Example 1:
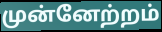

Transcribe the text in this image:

முன்னேற்றம்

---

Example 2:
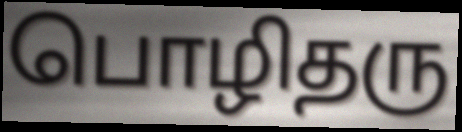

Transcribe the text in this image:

பொழிதரு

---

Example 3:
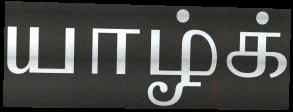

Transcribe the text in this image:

யாழ்க்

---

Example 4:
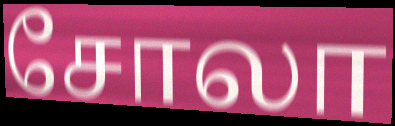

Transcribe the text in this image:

சோலா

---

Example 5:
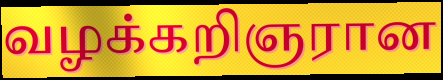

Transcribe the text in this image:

வழக்கறிஞரான